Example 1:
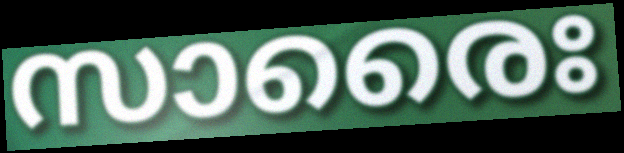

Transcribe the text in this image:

സാരൈഃ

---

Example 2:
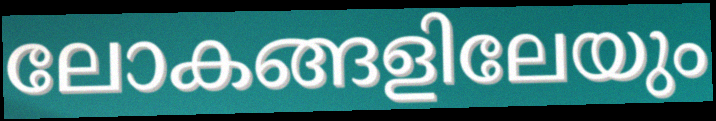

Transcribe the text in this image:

ലോകങ്ങളിലേയും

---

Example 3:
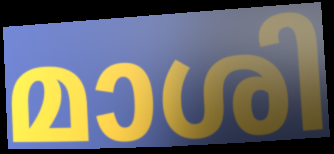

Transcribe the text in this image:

മാശി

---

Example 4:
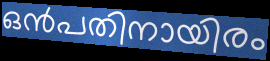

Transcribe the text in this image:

ഒൻപതിനായിരം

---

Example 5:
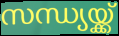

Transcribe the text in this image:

സന്ധ്യയ്ക്ക്